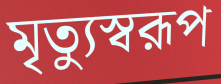
মৃত্যুস্বরূপ